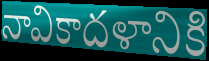
నావికాదళానికి